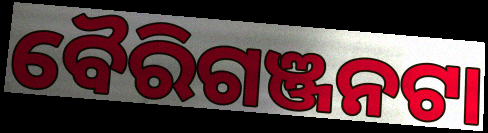
ବୈରିଗଞ୍ଜନଟା